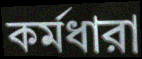
কর্মধারা